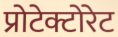
प्रोटेक्टोरेट